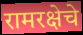
रामरक्षेचे